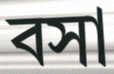
বসা